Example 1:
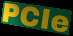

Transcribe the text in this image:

PCIe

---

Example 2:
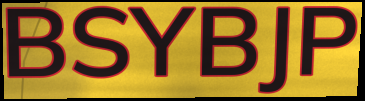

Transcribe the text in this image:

BSYBJP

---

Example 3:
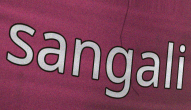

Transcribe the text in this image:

sangali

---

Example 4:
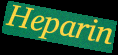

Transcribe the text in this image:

Heparin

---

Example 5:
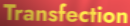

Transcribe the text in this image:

Transfection